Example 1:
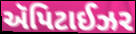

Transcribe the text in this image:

ઍપિટાઈઝર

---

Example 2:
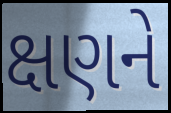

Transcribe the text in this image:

ક્ષણને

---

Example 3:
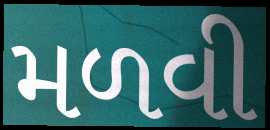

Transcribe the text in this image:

મળવી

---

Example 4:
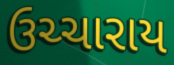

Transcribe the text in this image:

ઉચ્ચારાય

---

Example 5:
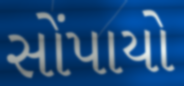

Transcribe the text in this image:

સોંપાયો